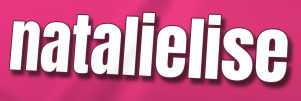
natalielise